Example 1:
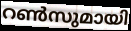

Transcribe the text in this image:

റൺസുമായി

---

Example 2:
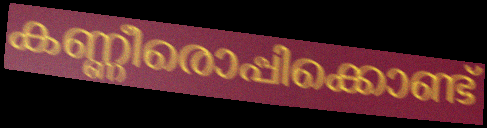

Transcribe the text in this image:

കണ്ണീരൊപ്പിക്കൊണ്ട്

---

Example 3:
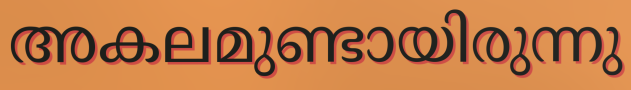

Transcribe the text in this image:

അകലമുണ്ടായിരുന്നു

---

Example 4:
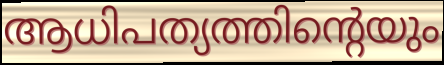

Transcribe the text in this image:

ആധിപത്യത്തിന്റെയും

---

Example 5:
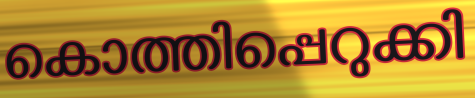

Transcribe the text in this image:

കൊത്തിപ്പെറുക്കി